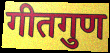
गीतगुण